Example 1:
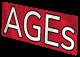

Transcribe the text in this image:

AGEs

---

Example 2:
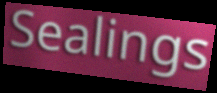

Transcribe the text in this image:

Sealings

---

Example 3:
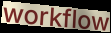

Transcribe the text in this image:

workflow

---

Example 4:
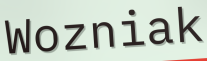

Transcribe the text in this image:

Wozniak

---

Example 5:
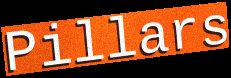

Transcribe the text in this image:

Pillars